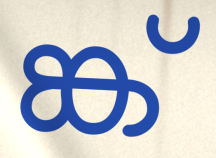
ങ്ക്